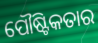
ପୌଷ୍ଟିକତାର